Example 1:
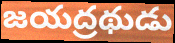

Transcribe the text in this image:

జయద్రథుడు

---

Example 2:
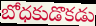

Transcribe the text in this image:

బోధకుడొకడు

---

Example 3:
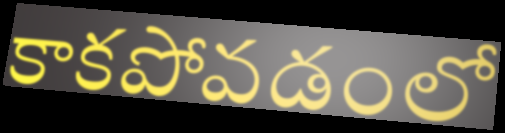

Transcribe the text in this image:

కాకపోవడంలో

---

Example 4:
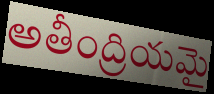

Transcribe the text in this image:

అతీంద్రియమై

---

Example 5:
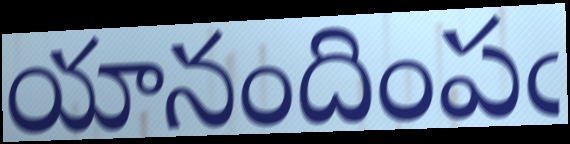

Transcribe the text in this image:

యానందింపఁ